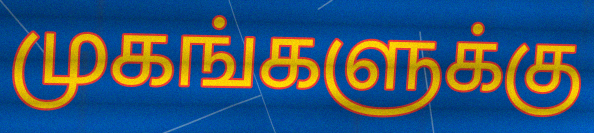
முகங்களுக்கு